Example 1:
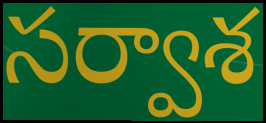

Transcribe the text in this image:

సర్వాశ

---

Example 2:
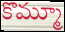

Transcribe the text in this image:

కొమ్మూ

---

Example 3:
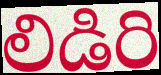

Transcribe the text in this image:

లిడిరి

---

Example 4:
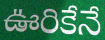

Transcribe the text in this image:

ఊరికేనే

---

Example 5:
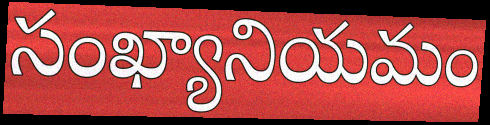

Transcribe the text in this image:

సంఖ్యానియమం